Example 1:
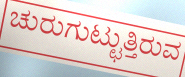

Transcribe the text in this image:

ಚುರುಗುಟ್ಟುತ್ತಿರುವ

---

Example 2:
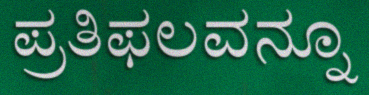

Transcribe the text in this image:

ಪ್ರತಿಫಲವನ್ನೂ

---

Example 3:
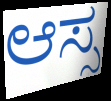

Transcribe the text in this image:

ಆಸ್ಸ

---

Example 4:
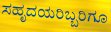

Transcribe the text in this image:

ಸಹೃದಯರಿಬ್ಬರಿಗೂ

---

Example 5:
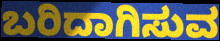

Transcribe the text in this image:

ಬರಿದಾಗಿಸುವ